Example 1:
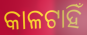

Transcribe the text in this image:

କାଳଟାହିଁ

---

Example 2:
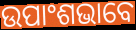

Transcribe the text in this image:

ଉପାଂଶଭାବେ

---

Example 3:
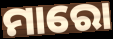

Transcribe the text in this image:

ମାରୋ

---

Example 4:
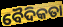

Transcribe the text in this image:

ବୈଦିକତା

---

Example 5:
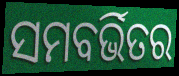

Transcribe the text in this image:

ସମବର୍ଭିତର